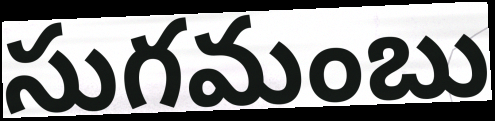
సుగమంబు